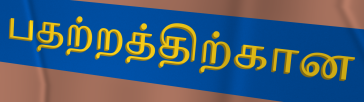
பதற்றத்திற்கான